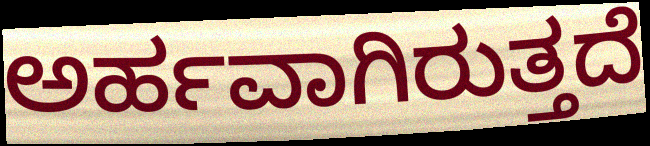
ಅರ್ಹವಾಗಿರುತ್ತದೆ